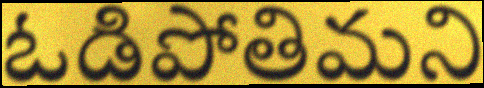
ఓడిపోతిమని